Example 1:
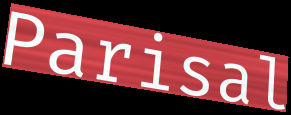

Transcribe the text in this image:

Parisal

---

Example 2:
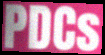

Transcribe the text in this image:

PDCs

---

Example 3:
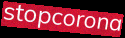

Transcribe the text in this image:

stopcorona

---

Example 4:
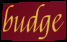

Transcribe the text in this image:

budge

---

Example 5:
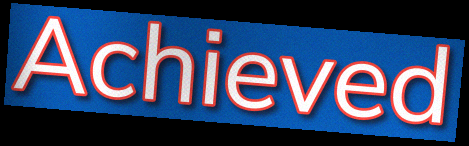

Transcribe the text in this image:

Achieved